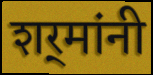
शर्मांनी